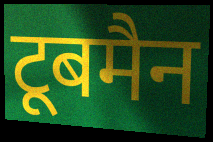
टूबमैन